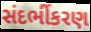
સંદર્ભીકરણ